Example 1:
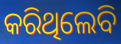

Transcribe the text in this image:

କରିଥିଲେବି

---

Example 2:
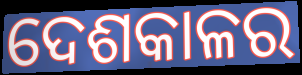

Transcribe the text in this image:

ଦେଶକାଳର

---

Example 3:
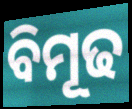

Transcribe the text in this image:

ବିମୂଢ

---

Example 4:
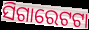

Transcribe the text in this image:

ସିଗାରେଟଟା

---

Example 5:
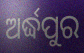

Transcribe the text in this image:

ଅର୍ଦ୍ଧପୁର